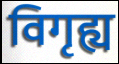
विगृह्य